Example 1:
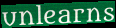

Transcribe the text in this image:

unlearns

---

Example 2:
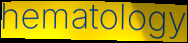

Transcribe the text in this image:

hematology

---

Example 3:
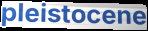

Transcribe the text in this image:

pleistocene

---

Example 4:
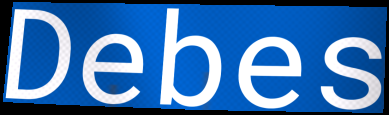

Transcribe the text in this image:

Debes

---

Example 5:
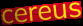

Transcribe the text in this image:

cereus